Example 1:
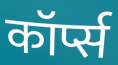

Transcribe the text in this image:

कॉर्प्स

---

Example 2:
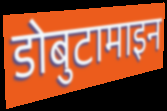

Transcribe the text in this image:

डोबुटामाइन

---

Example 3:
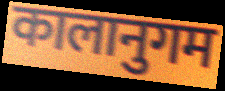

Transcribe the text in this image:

कालानुगम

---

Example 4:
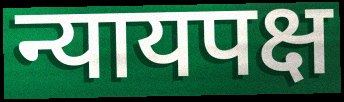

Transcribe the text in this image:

न्यायपक्ष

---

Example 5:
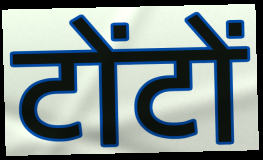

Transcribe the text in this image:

टोंटों